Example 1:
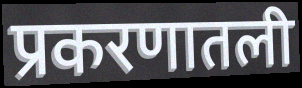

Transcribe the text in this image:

प्रकरणातली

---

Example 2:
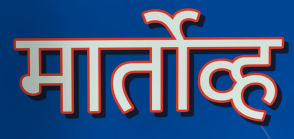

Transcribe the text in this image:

मार्तोव्ह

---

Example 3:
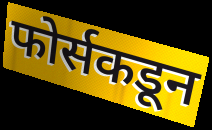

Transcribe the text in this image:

फोर्सकडून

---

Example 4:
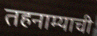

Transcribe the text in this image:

तहनाम्याची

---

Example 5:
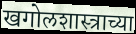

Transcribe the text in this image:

खगोलशास्त्राच्या